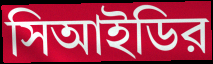
সিআইডির